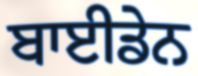
ਬਾਈਡੇਨ